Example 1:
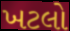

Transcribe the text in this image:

ખટલો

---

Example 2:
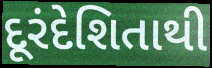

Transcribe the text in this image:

દૂરંદેશિતાથી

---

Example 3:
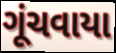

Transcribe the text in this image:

ગૂંચવાયા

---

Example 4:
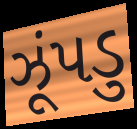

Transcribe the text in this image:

ઝૂંપડુ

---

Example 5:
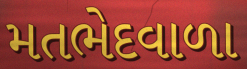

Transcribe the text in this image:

મતભેદવાળા